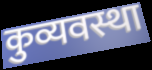
कुव्यवस्था